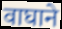
वाघाने